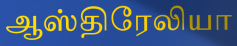
ஆஸ்திரேலியா